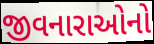
જીવનારાઓનો